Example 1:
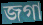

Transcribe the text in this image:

জগা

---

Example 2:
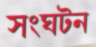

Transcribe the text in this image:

সংঘটন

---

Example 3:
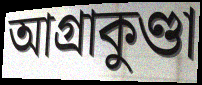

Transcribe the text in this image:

আগ্রাকুণ্ডা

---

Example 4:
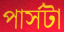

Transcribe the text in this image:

পার্সটা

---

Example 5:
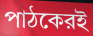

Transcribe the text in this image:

পাঠকেরই